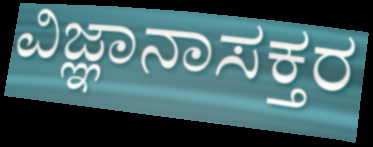
ವಿಜ್ಞಾನಾಸಕ್ತರ